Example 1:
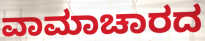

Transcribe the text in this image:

ವಾಮಾಚಾರದ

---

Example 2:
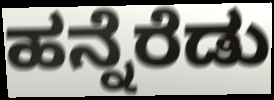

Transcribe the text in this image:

ಹನ್ನೆರೆಡು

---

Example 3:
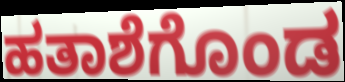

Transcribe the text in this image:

ಹತಾಶೆಗೊಂಡ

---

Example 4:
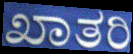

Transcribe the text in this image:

ಖಾತರಿ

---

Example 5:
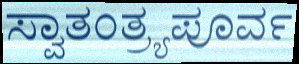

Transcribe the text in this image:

ಸ್ವಾತಂತ್ರ್ಯಪೂರ್ವ